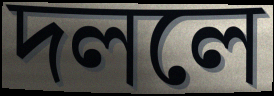
দললে